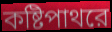
কষ্টিপাথরে